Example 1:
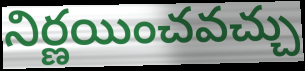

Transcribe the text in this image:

నిర్ణయించవచ్చు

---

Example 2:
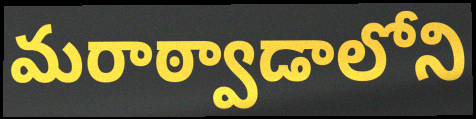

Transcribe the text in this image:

మరాఠ్వాడాలోని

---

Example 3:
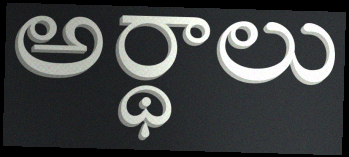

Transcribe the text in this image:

అర్థాలు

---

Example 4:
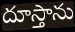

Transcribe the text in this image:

దూస్తాను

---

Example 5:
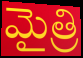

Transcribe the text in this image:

మైత్రి